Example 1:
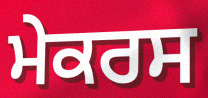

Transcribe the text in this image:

ਮੇਕਰਸ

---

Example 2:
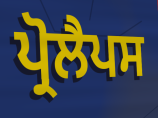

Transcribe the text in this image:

ਪ੍ਰੋਲੈਪਸ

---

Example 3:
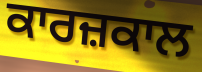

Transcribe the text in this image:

ਕਾਰਜ਼ਕਾਲ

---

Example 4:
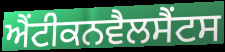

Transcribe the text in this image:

ਐਂਟੀਕਨਵੈਲਸੈਂਟਸ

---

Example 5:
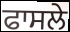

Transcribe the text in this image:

ਫਾਸਲੇ